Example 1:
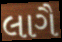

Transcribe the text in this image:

લાગૈ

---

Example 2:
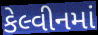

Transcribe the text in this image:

કેલ્વીનમાં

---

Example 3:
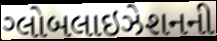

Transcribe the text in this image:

ગ્લોબલાઇઝેશનની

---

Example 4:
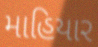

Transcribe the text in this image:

માહિયાર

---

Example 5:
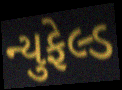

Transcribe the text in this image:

ન્યુફેલ્ડ